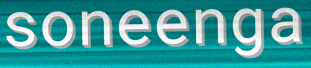
soneenga